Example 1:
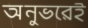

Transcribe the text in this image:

অনুভৱেই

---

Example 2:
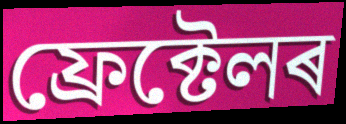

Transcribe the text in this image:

ফ্ৰেক্টেলৰ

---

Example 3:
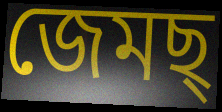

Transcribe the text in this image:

জেমছ্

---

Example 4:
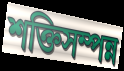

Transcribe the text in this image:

শক্তিসম্পন্ন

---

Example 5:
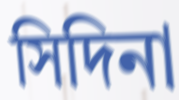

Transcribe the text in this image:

সিদিনা